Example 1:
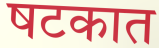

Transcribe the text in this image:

षटकात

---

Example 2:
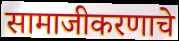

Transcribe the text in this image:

सामाजीकरणाचे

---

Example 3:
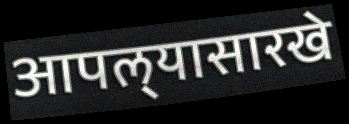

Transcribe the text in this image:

आपल्यासारखे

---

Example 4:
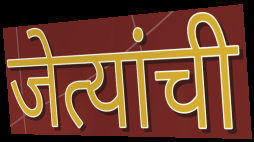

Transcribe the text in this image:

जेत्यांची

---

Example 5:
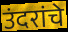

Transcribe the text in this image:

उंदरांचे